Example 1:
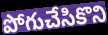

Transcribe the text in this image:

పోగుచేసికొని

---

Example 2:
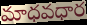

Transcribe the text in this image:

మాధవధార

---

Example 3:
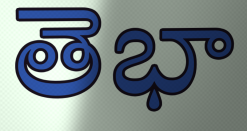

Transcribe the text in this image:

తెభా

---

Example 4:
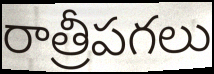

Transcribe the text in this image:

రాత్రీపగలు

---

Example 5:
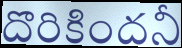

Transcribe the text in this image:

దొరికిందనీ